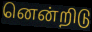
னென்றிடு